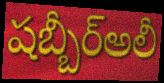
షబ్బీర్అలీ